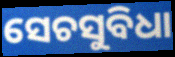
ସେଚସୁବିଧା